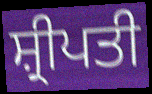
ਸ਼੍ਰੀਪਤੀ